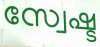
സ്വേഷ്ട